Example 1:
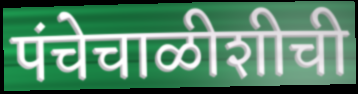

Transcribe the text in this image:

पंचेचाळीशीची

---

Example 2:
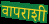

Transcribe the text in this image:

वापराशी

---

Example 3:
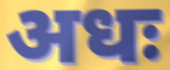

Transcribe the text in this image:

अधः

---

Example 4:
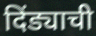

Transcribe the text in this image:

दिंड्याची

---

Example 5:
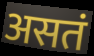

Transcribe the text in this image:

असतं